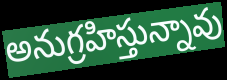
అనుగ్రహిస్తున్నావు